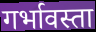
गर्भावस्ता